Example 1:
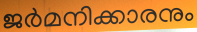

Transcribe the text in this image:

ജർമനിക്കാരനും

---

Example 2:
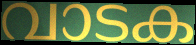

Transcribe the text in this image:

വാടക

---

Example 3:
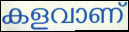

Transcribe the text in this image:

കളവാണ്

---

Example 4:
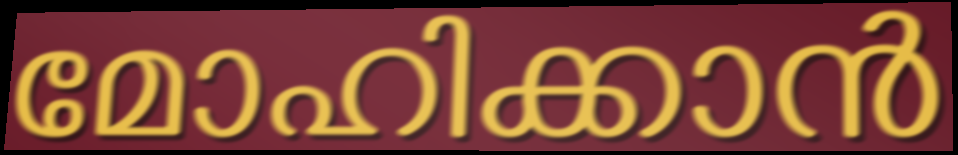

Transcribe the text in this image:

മോഹിക്കാൻ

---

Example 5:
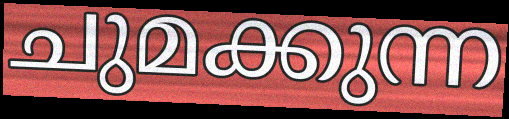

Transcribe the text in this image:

ചുമക്കുന്ന